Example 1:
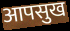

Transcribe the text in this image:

आपसुख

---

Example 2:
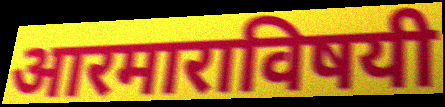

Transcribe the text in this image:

आरमाराविषयी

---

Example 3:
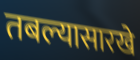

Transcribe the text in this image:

तबल्यासारखे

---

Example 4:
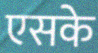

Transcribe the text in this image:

एसके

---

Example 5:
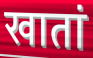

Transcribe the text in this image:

खातां